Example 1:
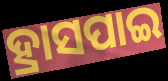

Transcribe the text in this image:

ହ୍ରାସପାଇ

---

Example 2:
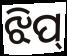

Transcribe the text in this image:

ଝିପ୍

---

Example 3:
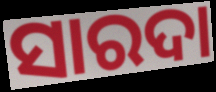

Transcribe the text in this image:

ସାରଦା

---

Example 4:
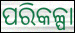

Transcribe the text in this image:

ପରିକଳ୍ପା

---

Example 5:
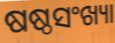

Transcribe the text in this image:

ଷଷ୍ଠସଂଖ୍ୟା